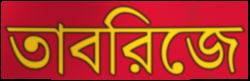
তাবরিজে